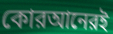
কোরআনেরই